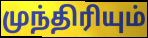
முந்திரியும்